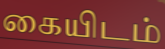
கையிடம்